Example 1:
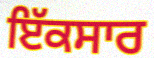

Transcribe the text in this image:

ਇੱਕਸਾਰ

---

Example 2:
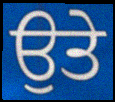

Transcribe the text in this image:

ਉਤੇ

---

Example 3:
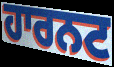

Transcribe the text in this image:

ਹਾਰਨਟ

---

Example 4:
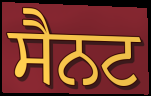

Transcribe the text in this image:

ਸੈਨਟ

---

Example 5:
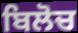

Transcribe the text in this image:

ਬਿਲੋਚ